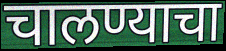
चालण्याचा